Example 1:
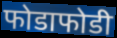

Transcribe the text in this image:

फोडाफोडी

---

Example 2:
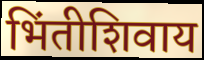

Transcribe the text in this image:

भिंतीशिवाय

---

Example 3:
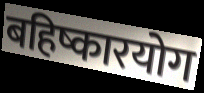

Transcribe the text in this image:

बहिष्कारयोग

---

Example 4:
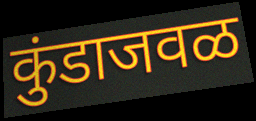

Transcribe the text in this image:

कुंडाजवळ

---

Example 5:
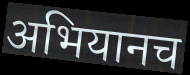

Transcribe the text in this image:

अभियानच